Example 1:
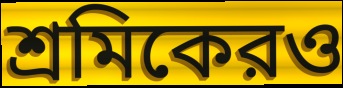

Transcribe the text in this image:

শ্রমিকেরও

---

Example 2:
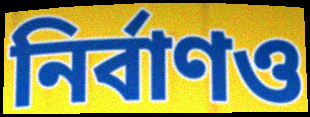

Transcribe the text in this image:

নির্বাণও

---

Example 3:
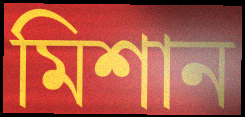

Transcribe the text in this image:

মিশান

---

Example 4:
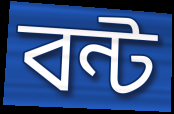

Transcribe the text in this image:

বন্ট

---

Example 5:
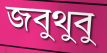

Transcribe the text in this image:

জবুথুবু